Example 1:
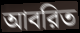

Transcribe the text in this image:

আবরিত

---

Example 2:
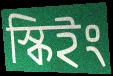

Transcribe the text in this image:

স্কিইং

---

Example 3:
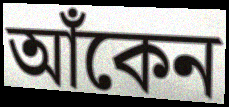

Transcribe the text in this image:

আঁকেন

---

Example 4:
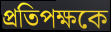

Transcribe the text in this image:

প্রতিপক্ষকে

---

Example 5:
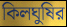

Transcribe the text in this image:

কিলঘুষির